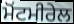
ਮੋਂਟਮੀਰੇਲ